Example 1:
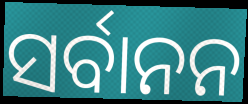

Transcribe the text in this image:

ସର୍ବାନନ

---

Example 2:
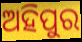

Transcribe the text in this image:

ଅହିପୁର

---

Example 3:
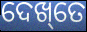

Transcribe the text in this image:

ଦେଖ୍‌ତେ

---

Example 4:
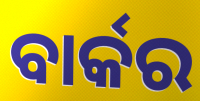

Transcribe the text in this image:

ବାର୍କର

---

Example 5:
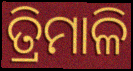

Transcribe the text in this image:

ତ୍ରିମାଳି